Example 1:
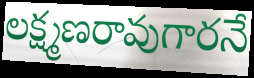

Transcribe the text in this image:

లక్ష్మణరావుగారనే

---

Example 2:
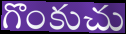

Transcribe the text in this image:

గొంకుచు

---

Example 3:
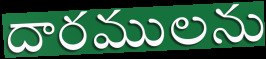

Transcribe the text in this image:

దారములను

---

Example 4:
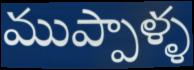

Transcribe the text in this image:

ముప్పాళ్ళ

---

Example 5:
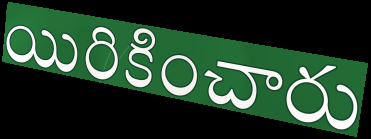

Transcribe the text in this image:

యిరికించారు